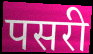
पसरी